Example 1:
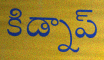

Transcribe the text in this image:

కిడ్నాప్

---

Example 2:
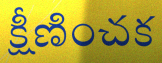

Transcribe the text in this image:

క్షీణించక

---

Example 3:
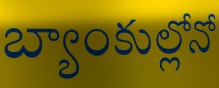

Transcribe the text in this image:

బ్యాంకుల్లోనో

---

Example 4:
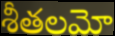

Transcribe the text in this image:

శీతలమో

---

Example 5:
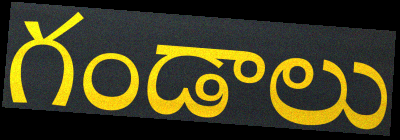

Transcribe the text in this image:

గండాలు